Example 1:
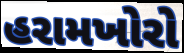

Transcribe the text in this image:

હરામખોરો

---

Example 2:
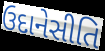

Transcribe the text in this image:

ઉદાનેસીતિ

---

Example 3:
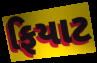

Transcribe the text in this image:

ફિયાટ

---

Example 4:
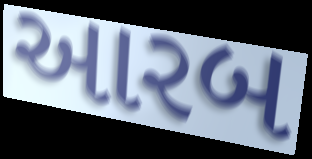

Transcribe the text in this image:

આરબ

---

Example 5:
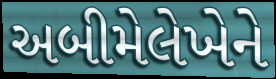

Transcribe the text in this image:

અબીમેલેખેને